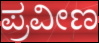
ಪ್ರವೀಣ